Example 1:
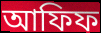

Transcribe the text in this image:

আফিফ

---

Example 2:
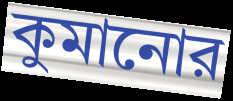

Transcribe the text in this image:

কুমানোর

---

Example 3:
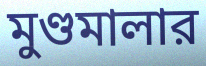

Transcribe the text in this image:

মুণ্ডমালার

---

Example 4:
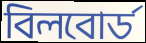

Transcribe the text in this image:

বিলবোর্ড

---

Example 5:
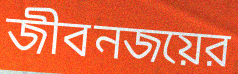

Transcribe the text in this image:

জীবনজয়ের